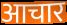
आचार